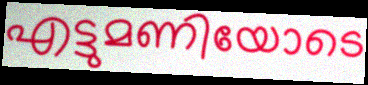
എട്ടുമണിയോടെ